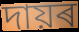
দায়ৰ